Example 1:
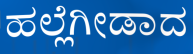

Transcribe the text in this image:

ಹಲ್ಲೆಗೀಡಾದ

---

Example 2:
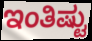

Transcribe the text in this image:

ಇಂತಿಷ್ಟು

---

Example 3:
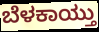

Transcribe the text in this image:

ಬೆಳಕಾಯ್ತು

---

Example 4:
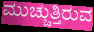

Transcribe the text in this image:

ಮುಚ್ಚುತ್ತಿರುವ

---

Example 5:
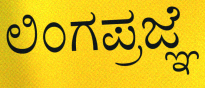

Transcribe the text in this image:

ಲಿಂಗಪ್ರಜ್ಞೆ